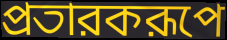
প্রতারকরূপে